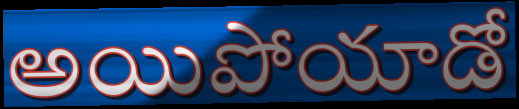
అయిపోయాడో